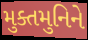
મુક્તમુનિને